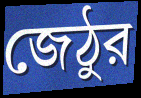
জেঠুর